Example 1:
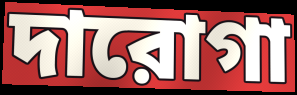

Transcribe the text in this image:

দারোগা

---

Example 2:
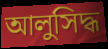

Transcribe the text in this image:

আলুসিদ্ধ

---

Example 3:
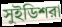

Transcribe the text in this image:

সুইডিশরা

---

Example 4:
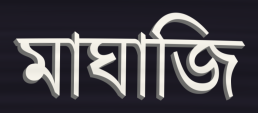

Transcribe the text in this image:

মাঘাজি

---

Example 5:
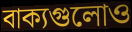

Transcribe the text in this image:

বাক্যগুলোও